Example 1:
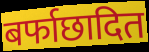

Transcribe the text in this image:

बर्फाछादित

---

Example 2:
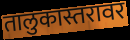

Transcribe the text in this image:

तालुकास्तरावर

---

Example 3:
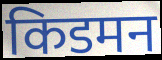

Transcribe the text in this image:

किडमन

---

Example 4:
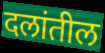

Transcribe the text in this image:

दलांतील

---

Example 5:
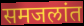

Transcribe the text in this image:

समजलांत